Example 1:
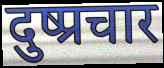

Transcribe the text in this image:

दुष्प्रचार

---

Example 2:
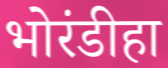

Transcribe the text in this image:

भोरंडीहा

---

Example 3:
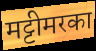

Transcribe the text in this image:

मट्टीमरका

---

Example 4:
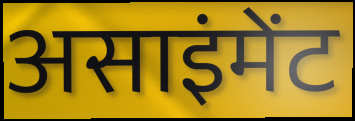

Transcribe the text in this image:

असाइंमेंट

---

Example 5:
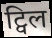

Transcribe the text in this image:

ट्विल